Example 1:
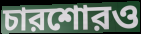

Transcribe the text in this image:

চারশোরও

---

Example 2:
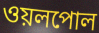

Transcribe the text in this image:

ওয়লপোল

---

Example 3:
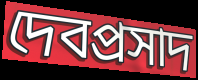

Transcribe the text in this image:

দেবপ্রসাদ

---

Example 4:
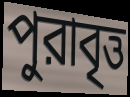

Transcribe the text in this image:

পুরাবৃত্ত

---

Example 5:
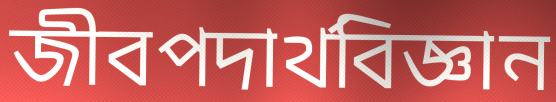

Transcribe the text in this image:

জীবপদার্থবিজ্ঞান